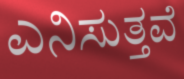
ಎನಿಸುತ್ತವೆ